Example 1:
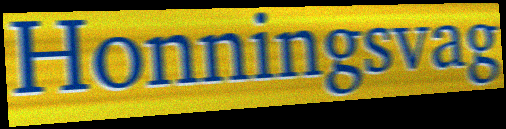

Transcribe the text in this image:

Honningsvag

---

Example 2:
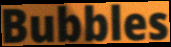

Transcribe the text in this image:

Bubbles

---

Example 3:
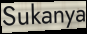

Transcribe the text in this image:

Sukanya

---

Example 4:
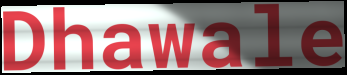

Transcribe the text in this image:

Dhawale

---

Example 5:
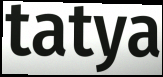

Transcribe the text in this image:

tatya